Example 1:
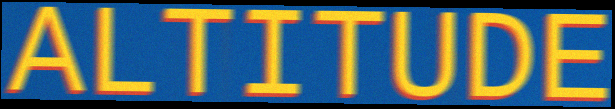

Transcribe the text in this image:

ALTITUDE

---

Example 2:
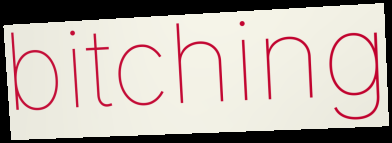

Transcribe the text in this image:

bitching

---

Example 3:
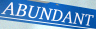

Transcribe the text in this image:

ABUNDANT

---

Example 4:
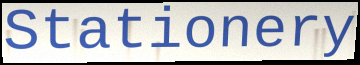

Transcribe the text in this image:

Stationery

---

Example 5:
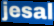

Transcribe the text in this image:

jesal